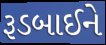
રૂડબાઈને